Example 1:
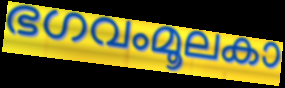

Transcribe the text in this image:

ഭഗവംമൂലകാ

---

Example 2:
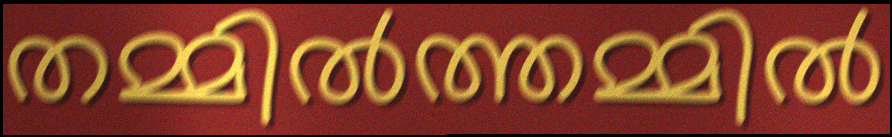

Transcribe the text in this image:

തമ്മിൽത്തമ്മിൽ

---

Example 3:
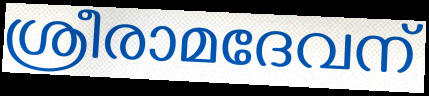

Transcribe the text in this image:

ശ്രീരാമദേവന്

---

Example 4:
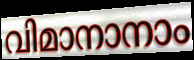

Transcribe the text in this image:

വിമാനാനാം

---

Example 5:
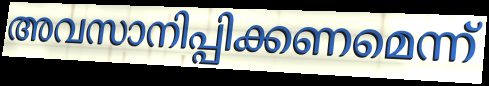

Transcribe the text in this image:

അവസാനിപ്പിക്കണമെന്ന്